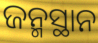
ଜନ୍ମସ୍ଥାନ